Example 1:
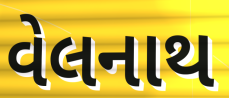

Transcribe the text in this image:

વેલનાથ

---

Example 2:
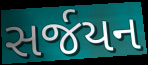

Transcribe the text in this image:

સર્જયન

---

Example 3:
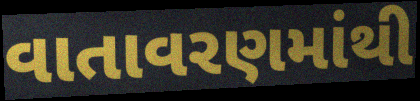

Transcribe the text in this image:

વાતાવરણમાંથી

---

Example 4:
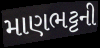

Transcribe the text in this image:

માણભટ્ટની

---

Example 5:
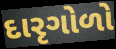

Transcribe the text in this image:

દારૃગોળો